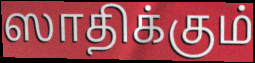
ஸாதிக்கும்